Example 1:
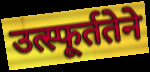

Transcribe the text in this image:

उत्स्फूर्ततेने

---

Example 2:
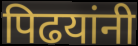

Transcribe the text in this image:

पिढयांनी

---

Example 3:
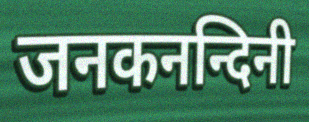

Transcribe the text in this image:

जनकनन्दिनी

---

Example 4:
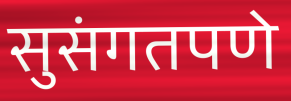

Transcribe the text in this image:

सुसंगतपणे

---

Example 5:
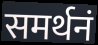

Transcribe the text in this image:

समर्थनं